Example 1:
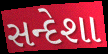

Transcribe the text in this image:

સન્દેશા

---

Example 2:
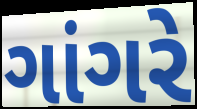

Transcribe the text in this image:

ગાંગરે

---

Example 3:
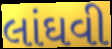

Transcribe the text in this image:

લાંઘવી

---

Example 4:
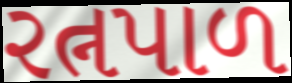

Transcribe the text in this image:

રત્નપાળ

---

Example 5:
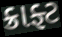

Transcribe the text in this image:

ક્રાફ્ટ